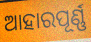
ଆହାରପୂର୍ଣ୍ଣ